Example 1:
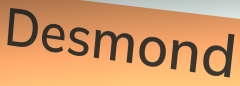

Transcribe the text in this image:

Desmond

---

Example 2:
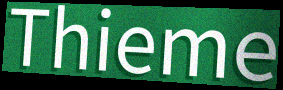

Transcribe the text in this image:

Thieme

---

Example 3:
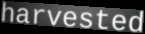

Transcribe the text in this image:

harvested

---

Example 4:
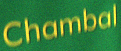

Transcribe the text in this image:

Chambal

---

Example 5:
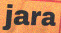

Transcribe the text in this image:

jara